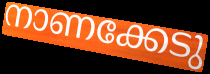
നാണക്കേടു